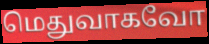
மெதுவாகவோ